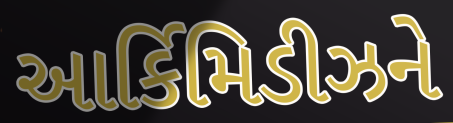
આર્કિમિડીઝને